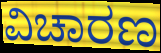
ವಿಚಾರಣ